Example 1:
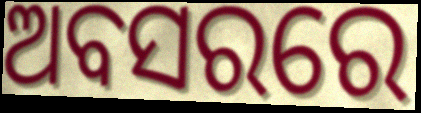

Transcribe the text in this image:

ଅବସରରେ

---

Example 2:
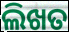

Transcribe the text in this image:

ଲିଖତ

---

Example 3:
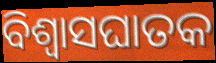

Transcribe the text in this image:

ବିଶ୍ୱାସଘାତକ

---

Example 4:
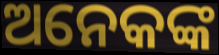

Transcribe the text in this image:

ଅନେକଙ୍କ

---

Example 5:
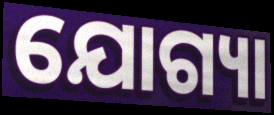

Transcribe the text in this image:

ଯୋଗ୍ୟା